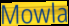
Mowla